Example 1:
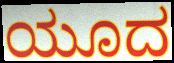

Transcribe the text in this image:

ಯೂದ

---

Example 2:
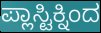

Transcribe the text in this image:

ಪ್ಲಾಸ್ಟಿಕ್ನಿಂದ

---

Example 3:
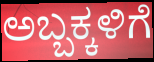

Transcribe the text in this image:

ಅಬ್ಬಕ್ಕಳಿಗೆ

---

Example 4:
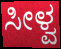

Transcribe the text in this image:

ಸೀಳ್ವ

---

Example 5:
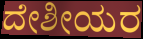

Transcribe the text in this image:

ದೇಶೀಯರ